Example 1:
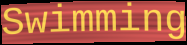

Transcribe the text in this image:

Swimming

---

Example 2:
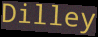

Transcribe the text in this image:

Dilley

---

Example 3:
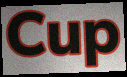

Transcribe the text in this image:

Cup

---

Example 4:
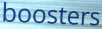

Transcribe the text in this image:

boosters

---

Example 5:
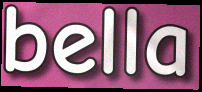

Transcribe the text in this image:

bella